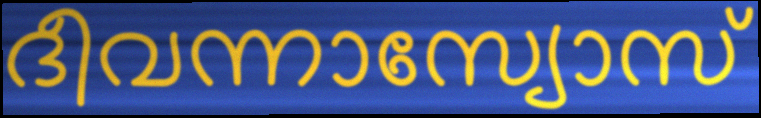
ദീവന്നാസ്യോസ്